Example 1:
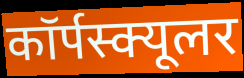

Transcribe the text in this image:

कॉर्पस्क्यूलर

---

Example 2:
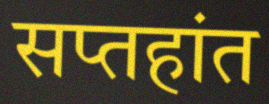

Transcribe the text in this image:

सप्तहांत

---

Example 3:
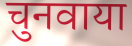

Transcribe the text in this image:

चुनवाया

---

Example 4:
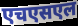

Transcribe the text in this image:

एचएसएल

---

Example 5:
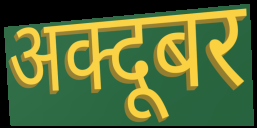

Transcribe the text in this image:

अक्दूबर